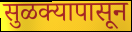
सुळक्यापासून